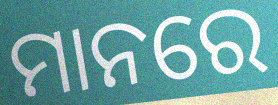
ମାନରେ